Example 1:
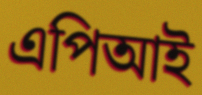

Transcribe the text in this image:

এপিআই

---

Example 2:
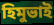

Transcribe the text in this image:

হিমুভাই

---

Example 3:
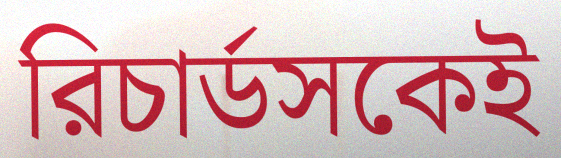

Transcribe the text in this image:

রিচার্ডসকেই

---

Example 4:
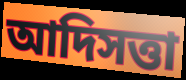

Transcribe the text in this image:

আদিসত্তা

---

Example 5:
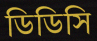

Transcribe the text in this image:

ডিডিসি